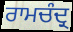
ਰਾਮਚੰਦ੍ਰ